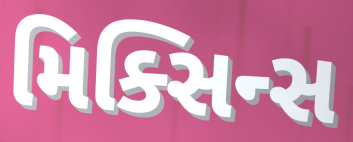
મિક્સિન્સ